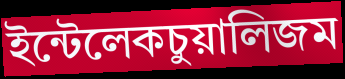
ইন্টেলেকচুয়ালিজম